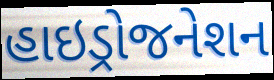
હાઇડ્રોજનેશન